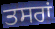
ਤਸਰਾਂ